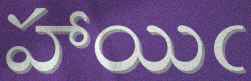
హాయిఁ